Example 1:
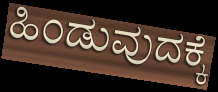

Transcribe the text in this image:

ಹಿಂಡುವುದಕ್ಕೆ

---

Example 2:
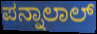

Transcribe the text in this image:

ಪನ್ನಾಲಾಲ್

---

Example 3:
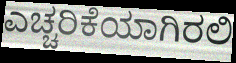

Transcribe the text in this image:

ಎಚ್ಚರಿಕೆಯಾಗಿರಲಿ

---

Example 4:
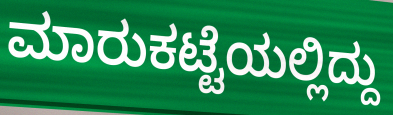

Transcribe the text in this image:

ಮಾರುಕಟ್ಟೆಯಲ್ಲಿದ್ದು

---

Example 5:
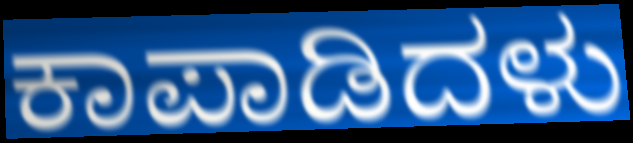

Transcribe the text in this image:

ಕಾಪಾಡಿದಳು